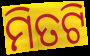
ମିତଟି